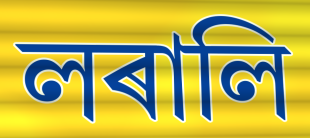
লৰালি